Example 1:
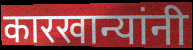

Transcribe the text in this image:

कारखान्यांनी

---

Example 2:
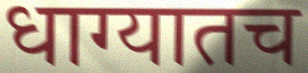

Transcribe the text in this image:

धाग्यातच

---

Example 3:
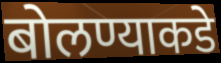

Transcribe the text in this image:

बोलण्याकडे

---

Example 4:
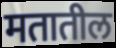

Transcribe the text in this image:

मतातील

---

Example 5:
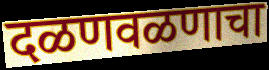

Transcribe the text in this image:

दळणवळणाचा